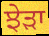
ਝੇੜਾ